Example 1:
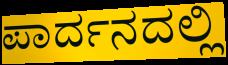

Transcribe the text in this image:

ಪಾರ್ದನದಲ್ಲಿ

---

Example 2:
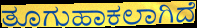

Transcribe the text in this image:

ತೂಗುಹಾಕಲಾಗಿದೆ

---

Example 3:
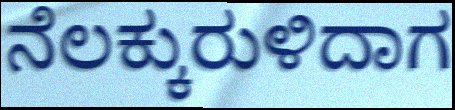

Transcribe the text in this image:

ನೆಲಕ್ಕುರುಳಿದಾಗ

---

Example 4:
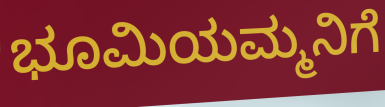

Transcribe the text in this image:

ಭೂಮಿಯಮ್ಮನಿಗೆ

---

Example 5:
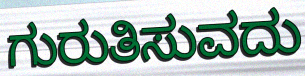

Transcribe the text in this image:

ಗುರುತಿಸುವದು